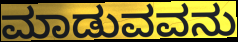
ಮಾಡುವವನು